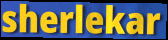
sherlekar